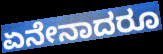
ಏನೇನಾದರೂ